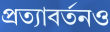
প্রত্যাবর্তনও